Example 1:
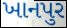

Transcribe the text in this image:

ખાનપુર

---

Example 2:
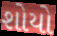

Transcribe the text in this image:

શોયો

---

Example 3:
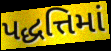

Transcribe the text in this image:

પદ્ધત્તિમાં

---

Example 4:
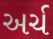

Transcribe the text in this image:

અર્ચ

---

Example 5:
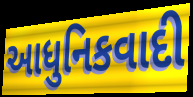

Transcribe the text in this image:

આધુનિકવાદી